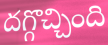
దగ్గొచ్చింది